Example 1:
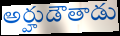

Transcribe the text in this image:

అర్హుడౌతాడు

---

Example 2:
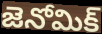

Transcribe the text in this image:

జెనోమిక్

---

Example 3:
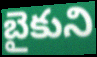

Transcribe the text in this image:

బైకుని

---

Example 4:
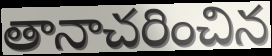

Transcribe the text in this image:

తానాచరించిన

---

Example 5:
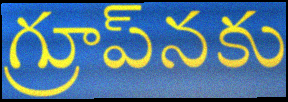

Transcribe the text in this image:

గ్రూప్‌నకు